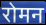
रोमन